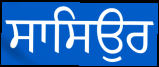
ਸਾਸਿਉਰ